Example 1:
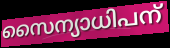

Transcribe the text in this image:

സൈന്യാധിപന്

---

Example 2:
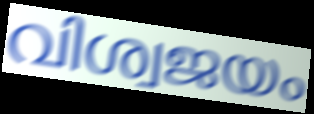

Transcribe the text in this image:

വിശ്വജയം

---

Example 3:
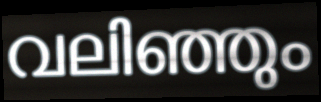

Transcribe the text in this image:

വലിഞ്ഞും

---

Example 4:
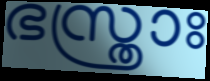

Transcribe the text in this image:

ഭസ്ത്രാഃ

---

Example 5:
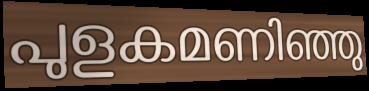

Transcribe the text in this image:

പുളകമണിഞ്ഞു